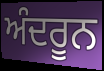
ਅੰਦਰੂਨ